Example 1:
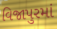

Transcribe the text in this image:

વિજાપુરમાં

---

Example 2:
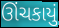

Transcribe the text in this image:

ઊંચકાયું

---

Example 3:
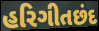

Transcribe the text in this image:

હરિગીતછંદ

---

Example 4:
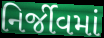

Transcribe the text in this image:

નિર્જીવમાં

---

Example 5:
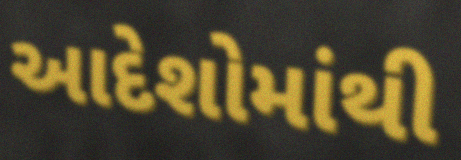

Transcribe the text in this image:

આદેશોમાંથી